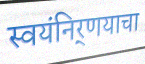
स्वयंनिर्णयाचा